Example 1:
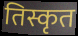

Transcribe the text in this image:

तिस्कृत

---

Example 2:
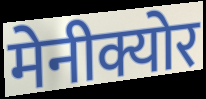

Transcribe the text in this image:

मेनीक्योर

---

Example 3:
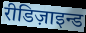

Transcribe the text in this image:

रीडिज़ाइन्ड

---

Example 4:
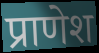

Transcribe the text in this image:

प्राणेश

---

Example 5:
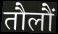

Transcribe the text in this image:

तौलौं